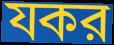
যকর